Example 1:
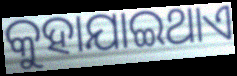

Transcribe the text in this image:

କୁହାଯାଇଥାଏ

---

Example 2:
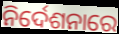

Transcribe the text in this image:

ନିର୍ଦେଶନାରେ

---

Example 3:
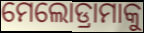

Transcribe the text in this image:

ମେଲୋଡ୍ରାମାକୁ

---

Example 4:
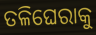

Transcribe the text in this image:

ତଳିଘେରାକୁ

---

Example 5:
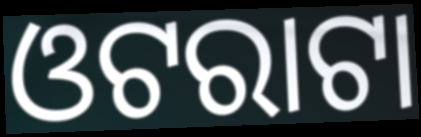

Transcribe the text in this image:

ଓଟରାଟା